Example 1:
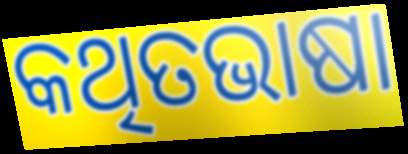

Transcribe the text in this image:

କଥିତଭାଷା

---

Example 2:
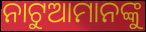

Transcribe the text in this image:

ନାଟୁଆମାନଙ୍କୁ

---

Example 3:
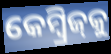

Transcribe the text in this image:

କେମ୍ୱ୍ରିଜ୍‌କୁ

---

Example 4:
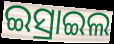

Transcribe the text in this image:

ଇସ୍ରାଇଲ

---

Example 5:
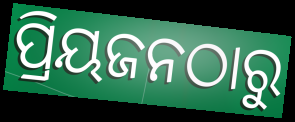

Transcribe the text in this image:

ପ୍ରିୟଜନଠାରୁ